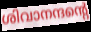
ശിവാനന്ദന്റെ